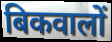
बिकवालों